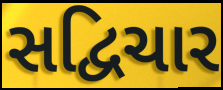
સદ્વિચાર